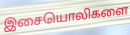
இசையொலிகளை